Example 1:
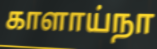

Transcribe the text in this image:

காளாய்நா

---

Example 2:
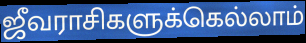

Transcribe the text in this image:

ஜீவராசிகளுக்கெல்லாம்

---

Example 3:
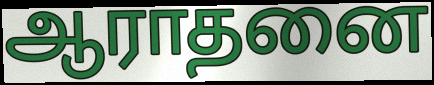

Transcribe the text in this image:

ஆராதனை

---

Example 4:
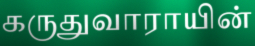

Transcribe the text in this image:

கருதுவாராயின்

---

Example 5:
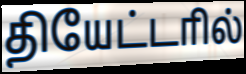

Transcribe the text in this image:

தியேட்டரில்